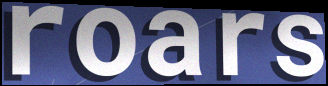
roars